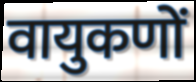
वायुकणों